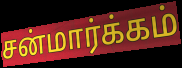
சன்மார்க்கம்